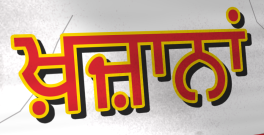
ਖ਼ਜ਼ਾਨਾਂ